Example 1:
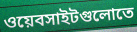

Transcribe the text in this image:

ওয়েবসাইটগুলোতে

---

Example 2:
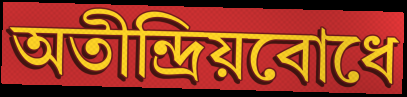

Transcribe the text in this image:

অতীন্দ্রিয়বোধে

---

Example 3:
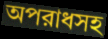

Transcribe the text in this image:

অপরাধসহ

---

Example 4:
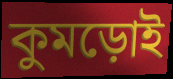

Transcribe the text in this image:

কুমড়োই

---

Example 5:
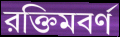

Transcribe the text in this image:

রক্তিমবর্ণ